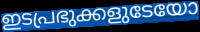
ഇടപ്രഭുക്കളുടേയോ